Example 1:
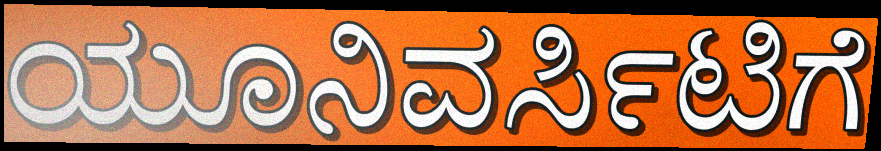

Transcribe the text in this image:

ಯೂನಿವರ್ಸಿಟಿಗೆ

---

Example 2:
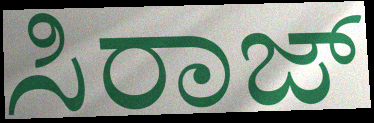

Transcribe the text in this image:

ಸಿರಾಜ್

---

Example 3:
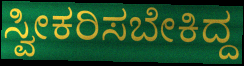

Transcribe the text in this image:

ಸ್ವೀಕರಿಸಬೇಕಿದ್ದ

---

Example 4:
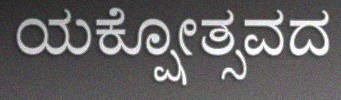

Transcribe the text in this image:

ಯಕ್ಷೋತ್ಸವದ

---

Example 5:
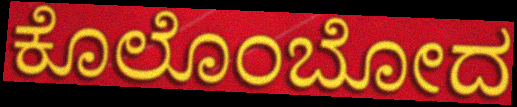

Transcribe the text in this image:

ಕೊಲೊಂಬೋದ